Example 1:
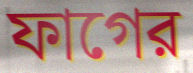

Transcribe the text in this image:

ফাগের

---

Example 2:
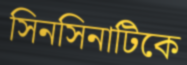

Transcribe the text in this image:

সিনসিনাটিকে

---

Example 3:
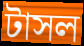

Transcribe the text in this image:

টাসল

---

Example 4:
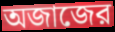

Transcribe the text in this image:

অজাজের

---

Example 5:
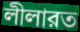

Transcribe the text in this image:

লীলারত